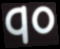
qo